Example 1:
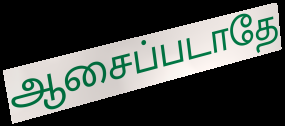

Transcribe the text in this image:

ஆசைப்படாதே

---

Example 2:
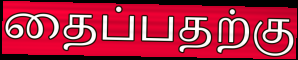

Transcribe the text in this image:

தைப்பதற்கு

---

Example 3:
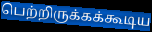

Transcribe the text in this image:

பெற்றிருக்கக்கூடிய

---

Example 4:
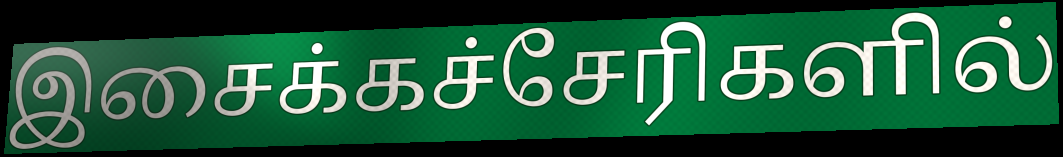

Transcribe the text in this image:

இசைக்கச்சேரிகளில்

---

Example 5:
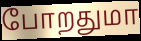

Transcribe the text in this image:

போறதுமா